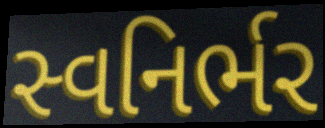
સ્વનિર્ભર